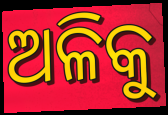
ଅଳିକୁ